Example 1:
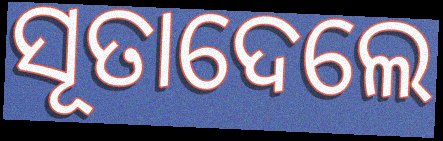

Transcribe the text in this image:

ସୂତାଦେଲେ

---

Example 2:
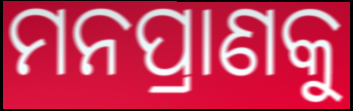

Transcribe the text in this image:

ମନପ୍ରାଣକୁ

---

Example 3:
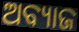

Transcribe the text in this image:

ଅବ୍ଯାଜ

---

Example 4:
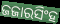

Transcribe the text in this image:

ଜଜାରସିଂହ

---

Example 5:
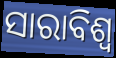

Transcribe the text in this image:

ସାରାବିଶ୍ବ